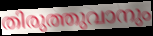
തിരുത്തുവാനും